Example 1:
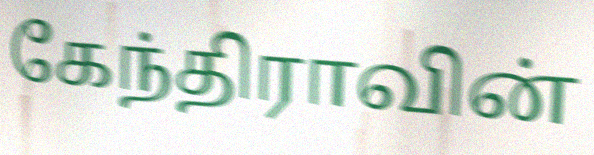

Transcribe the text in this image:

கேந்திராவின்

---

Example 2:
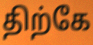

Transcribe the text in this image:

திற்கே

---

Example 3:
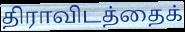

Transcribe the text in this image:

திராவிடத்தைக்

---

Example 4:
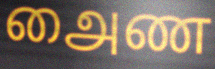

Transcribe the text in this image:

அைண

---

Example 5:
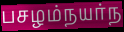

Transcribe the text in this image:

பசழம்நயர்ந